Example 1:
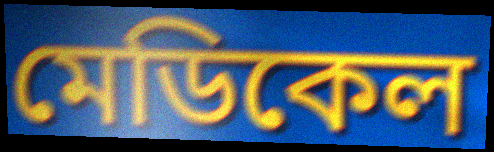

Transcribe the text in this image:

মেডিকেল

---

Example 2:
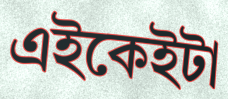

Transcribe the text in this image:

এইকেইটা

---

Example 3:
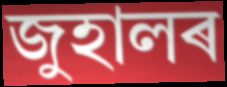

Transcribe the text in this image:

জুহালৰ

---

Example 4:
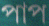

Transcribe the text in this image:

পাপ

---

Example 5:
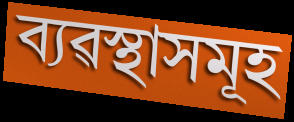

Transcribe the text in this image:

ব্যৱস্থাসমূহ